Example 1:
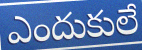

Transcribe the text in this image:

ఎందుకులే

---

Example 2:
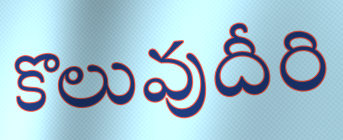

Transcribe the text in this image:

కొలువుదీరి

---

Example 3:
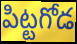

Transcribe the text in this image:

పిట్టగోడ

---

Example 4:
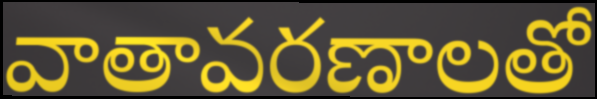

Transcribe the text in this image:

వాతావరణాలతో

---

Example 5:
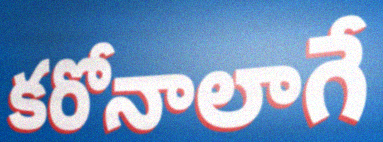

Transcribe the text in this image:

కరోనాలాగే